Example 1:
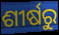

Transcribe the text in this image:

ଶୀର୍ଷରୁ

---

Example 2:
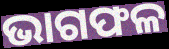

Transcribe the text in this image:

ଭାଗଫଳ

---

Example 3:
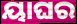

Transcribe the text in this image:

ୟାଘର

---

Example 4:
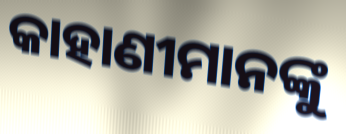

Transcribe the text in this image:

କାହାଣୀମାନଙ୍କୁ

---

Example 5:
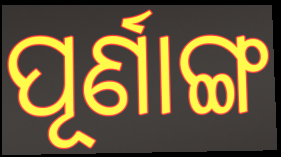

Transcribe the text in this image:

ପୂର୍ଣାଙ୍ଗ